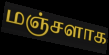
மஞ்சளாக